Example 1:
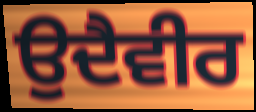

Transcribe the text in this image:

ਉਦੈਵੀਰ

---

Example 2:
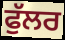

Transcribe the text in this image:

ਫੁੱਲਰ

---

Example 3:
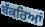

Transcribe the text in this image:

ਬੱਕਰਿਆਂ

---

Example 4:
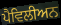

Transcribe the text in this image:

ਪੈਵਿਲੀਅਨ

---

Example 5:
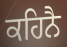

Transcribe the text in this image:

ਕਹਿਨੈ